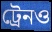
ট্রেনও